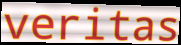
veritas